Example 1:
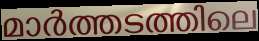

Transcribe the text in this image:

മാർത്തടത്തിലെ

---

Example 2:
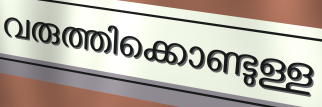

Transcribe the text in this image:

വരുത്തിക്കൊണ്ടുള്ള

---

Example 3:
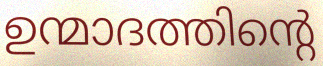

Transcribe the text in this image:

ഉന്മാദത്തിന്റെ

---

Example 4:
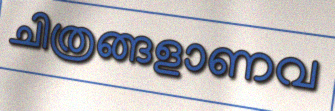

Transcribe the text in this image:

ചിത്രങ്ങളാണവ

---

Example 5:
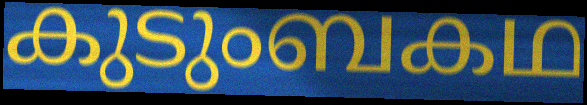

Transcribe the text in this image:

കുടുംബകഥ